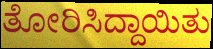
ತೋರಿಸಿದ್ದಾಯಿತು